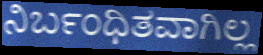
ನಿರ್ಬಂಧಿತವಾಗಿಲ್ಲ